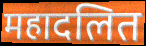
महादलित